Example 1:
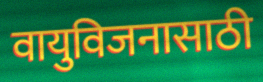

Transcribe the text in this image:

वायुविजनासाठी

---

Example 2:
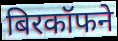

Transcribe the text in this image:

बिरकॉफने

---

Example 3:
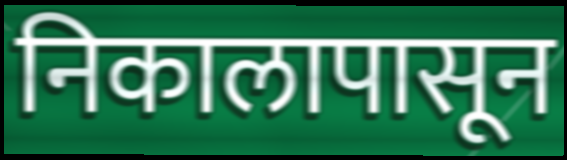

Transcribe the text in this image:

निकालापासून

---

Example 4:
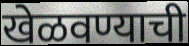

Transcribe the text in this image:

खेळवण्याची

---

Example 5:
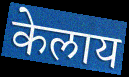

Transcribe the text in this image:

केलाय